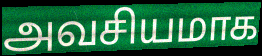
அவசியமாக